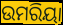
ଉମରିୟା